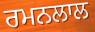
ਰਮਨਲਾਲ